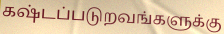
கஷ்டப்படுறவங்களுக்கு